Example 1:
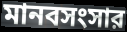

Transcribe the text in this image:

মানবসংসার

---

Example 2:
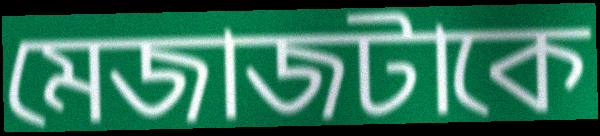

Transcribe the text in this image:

মেজাজটাকে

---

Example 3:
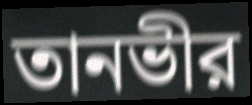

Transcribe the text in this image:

তানভীর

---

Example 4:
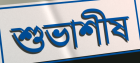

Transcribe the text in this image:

শুভাশীষ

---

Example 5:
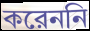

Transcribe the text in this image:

করেননি